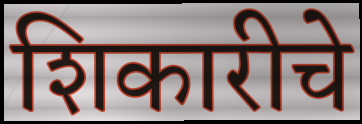
शिकारीचे